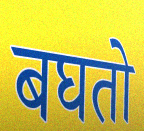
बघतो